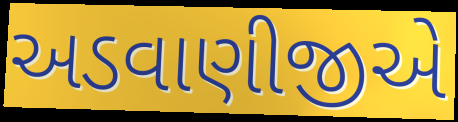
અડવાણીજીએ